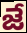
జే